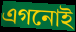
এগনোই